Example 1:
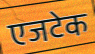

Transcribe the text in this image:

एजटेक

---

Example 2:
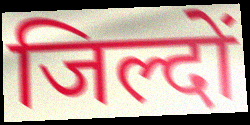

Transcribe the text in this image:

जिल्दों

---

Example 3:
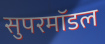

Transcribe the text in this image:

सुपरमॉडल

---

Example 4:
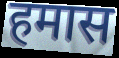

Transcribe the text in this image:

हमास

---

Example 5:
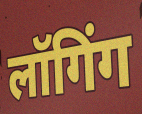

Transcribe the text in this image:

लॉगिंग